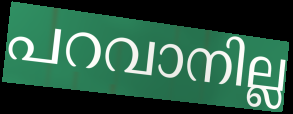
പറവാനില്ല